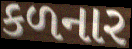
કળનાર